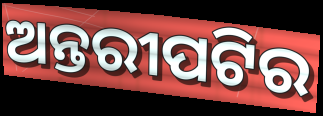
ଅନ୍ତରୀପଟିର